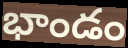
భాండం